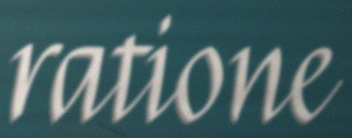
ratione